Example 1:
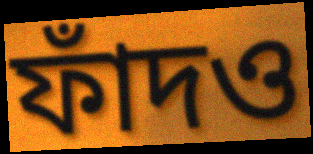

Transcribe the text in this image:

ফাঁদও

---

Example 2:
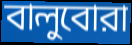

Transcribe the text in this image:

বালুবোরা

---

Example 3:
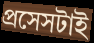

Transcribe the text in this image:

প্রসেসটাই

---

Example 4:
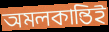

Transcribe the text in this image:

অমলকান্তিই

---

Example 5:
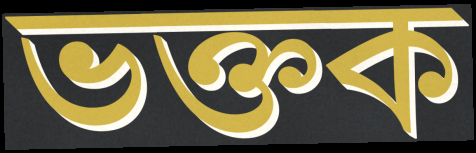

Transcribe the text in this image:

ভক্তক